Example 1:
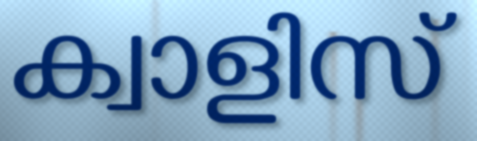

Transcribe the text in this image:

ക്വാളിസ്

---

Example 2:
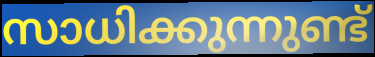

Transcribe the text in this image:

സാധിക്കുന്നുണ്ട്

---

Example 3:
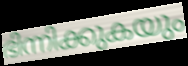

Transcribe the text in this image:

ഭിന്നിക്കുകയും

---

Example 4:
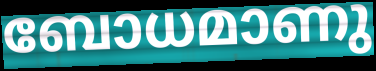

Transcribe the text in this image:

ബോധമാണു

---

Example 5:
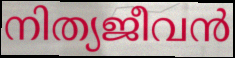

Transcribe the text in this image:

നിത്യജീവൻ